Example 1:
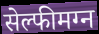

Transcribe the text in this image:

सेल्फीमग्न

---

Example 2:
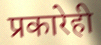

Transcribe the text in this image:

प्रकारेही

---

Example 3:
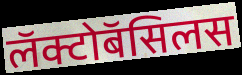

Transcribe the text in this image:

लॅक्टोबॅसिलस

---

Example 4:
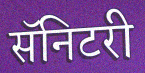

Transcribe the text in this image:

सॅनिटरी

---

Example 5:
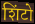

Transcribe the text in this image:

शिंटो